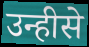
उन्हीसे